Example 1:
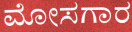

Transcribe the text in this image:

ಮೋಸಗಾರ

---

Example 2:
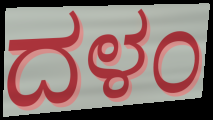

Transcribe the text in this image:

ದಳಂ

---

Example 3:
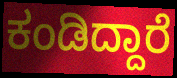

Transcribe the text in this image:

ಕಂಡಿದ್ದಾರೆ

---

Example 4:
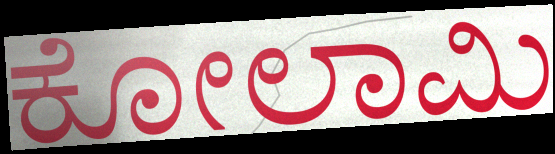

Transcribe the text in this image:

ಕೋಲಾಮಿ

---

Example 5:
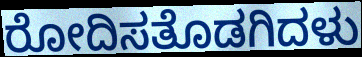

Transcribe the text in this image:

ರೋದಿಸತೊಡಗಿದಳು